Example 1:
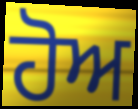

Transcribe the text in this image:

ਹੋਅ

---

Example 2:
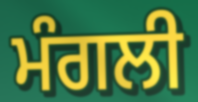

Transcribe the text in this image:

ਮੰਗਲੀ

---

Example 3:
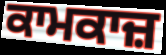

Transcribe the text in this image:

ਕਾਮਕਾਜ਼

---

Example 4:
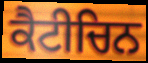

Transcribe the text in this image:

ਕੈਟੀਚਿਨ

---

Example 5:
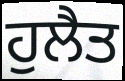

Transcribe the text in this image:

ਹੁਲੈਤ